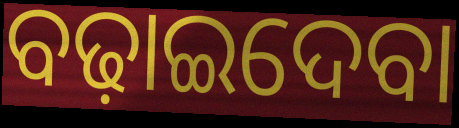
ବଢ଼ାଇଦେବା